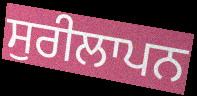
ਸੁਰੀਲਾਪਨ